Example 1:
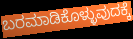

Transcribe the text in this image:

ಬರಮಾಡಿಕೊಳ್ಳುವುದಕ್ಕೆ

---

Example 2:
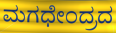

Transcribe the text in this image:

ಮಗಧೇಂದ್ರದ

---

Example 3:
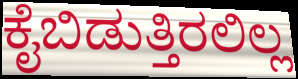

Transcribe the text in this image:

ಕೈಬಿಡುತ್ತಿರಲಿಲ್ಲ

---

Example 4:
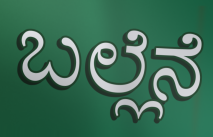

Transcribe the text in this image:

ಬಲ್ಲೆನೆ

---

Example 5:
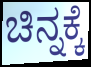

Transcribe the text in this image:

ಚಿನ್ನಕ್ಕೆ